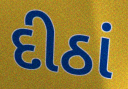
દીઠાં